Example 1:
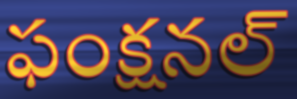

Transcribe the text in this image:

ఫంక్షనల్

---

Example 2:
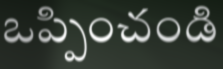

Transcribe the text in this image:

ఒప్పించండి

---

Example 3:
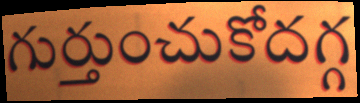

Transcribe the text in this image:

గుర్తుంచుకోదగ్గ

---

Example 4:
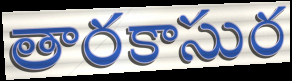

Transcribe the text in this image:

తారకాసుర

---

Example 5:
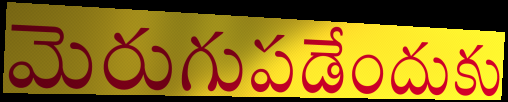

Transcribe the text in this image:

మెరుగుపడేందుకు